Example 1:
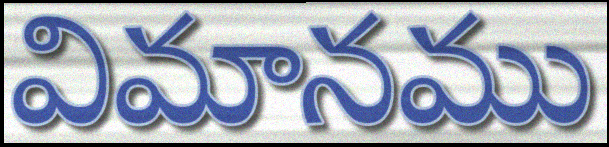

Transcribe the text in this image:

విమానము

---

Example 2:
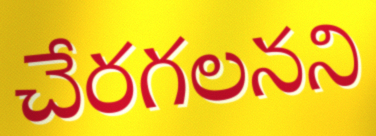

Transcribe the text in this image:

చేరగలనని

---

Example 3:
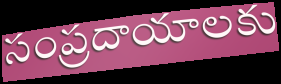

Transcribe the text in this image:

సంప్రదాయాలకు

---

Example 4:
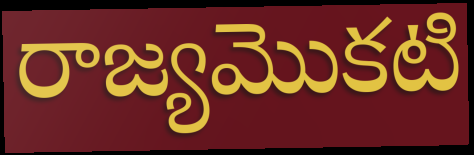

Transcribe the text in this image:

రాజ్యమొకటి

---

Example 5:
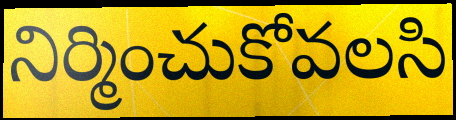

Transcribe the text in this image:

నిర్మించుకోవలసి